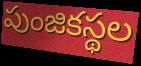
పుంజికస్థల